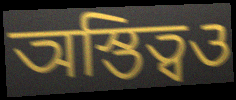
অস্তিত্বও